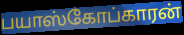
பயாஸ்கோப்காரன்